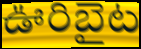
ఊరిబైట